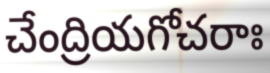
చేంద్రియగోచరాః